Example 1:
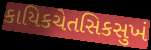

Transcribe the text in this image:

કાયિકચેતસિકસુખં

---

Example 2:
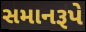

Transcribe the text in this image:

સમાનરૂપે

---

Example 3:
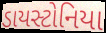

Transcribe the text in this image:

ડાયસ્ટોનિયા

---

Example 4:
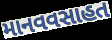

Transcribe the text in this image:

માનવવસાહત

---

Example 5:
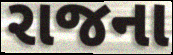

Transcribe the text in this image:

રાજના